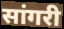
सांगरी